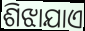
ଶିଝାଯାଏ